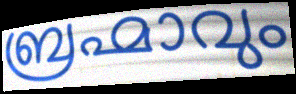
ബ്രഹ്മാവും